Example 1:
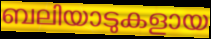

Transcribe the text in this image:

ബലിയാടുകളായ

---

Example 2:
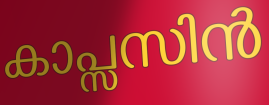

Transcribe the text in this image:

കാപ്സസിൻ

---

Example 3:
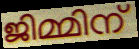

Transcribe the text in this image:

ജിമ്മിന്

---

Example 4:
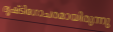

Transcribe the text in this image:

ദൃഷ്ടിഗോചരമായിരുന്നു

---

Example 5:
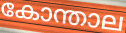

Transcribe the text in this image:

കോന്താല